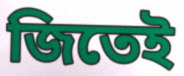
জিতেই